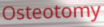
Osteotomy